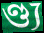
ণ্ড্য